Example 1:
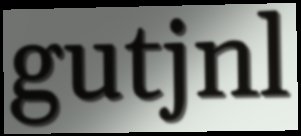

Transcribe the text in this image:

gutjnl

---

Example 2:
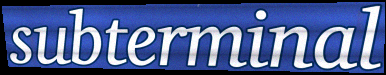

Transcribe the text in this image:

subterminal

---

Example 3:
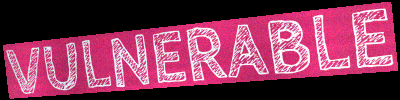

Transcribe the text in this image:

VULNERABLE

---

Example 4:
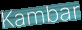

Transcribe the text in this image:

Kambar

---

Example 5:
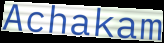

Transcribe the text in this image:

Achakam